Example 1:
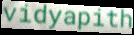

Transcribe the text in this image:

vidyapith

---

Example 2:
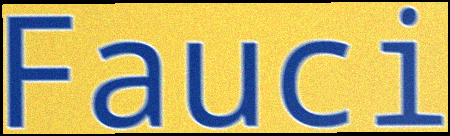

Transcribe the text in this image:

Fauci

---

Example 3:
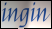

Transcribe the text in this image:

ingin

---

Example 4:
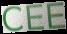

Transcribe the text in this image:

CEE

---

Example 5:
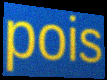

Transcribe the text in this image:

pois